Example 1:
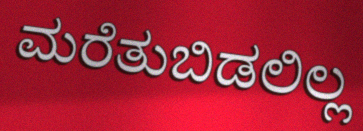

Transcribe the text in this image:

ಮರೆತುಬಿಡಲಿಲ್ಲ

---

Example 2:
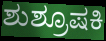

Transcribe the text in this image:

ಶುಶ್ರೂಷಕಿ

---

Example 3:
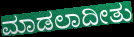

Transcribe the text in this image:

ಮಾಡಲಾದೀತು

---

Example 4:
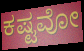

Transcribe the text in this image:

ಕಷ್ಟವೋ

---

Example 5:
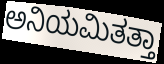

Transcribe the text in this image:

ಅನಿಯಮಿತತ್ತಾ